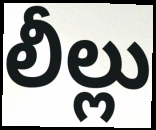
లీల్లు